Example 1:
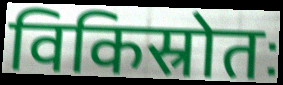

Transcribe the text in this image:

विकिस्रोतः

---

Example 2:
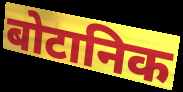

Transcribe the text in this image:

बोटानिक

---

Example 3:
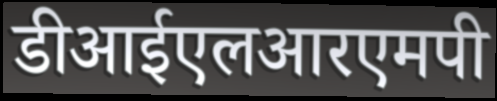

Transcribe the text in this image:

डीआईएलआरएमपी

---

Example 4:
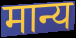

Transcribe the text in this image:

मान्य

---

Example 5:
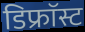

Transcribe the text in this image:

डिफ्रॉस्ट